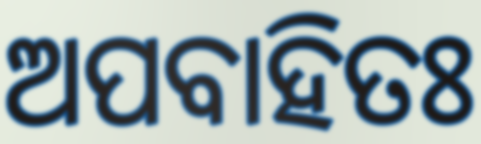
ଅପବାହିତଃ